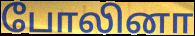
போலினா